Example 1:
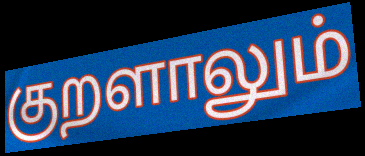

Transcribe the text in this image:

குறளாலும்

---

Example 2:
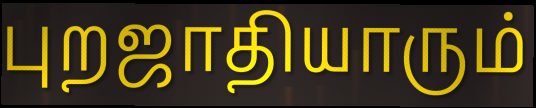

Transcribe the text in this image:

புறஜாதியாரும்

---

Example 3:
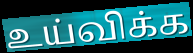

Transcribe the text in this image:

உய்விக்க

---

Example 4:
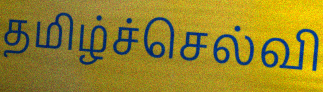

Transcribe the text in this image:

தமிழ்ச்செல்வி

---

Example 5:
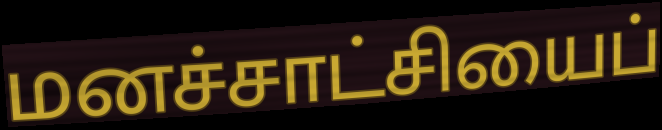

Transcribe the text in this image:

மனச்சாட்சியைப்